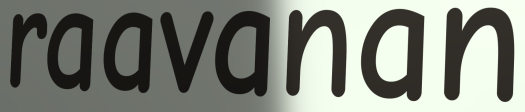
raavanan